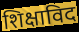
शिक्षाविद